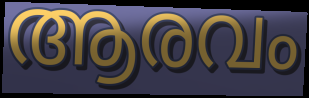
ആരവം